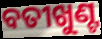
ବତୀଖୁଣ୍ଟ